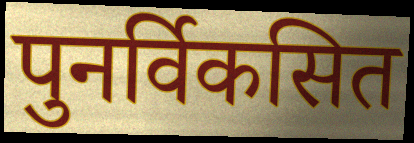
पुनर्विकसित